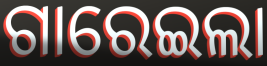
ଗାରେଇଲା